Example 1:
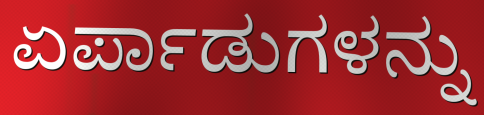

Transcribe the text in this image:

ಏರ್ಪಾಡುಗಳನ್ನು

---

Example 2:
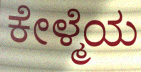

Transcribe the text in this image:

ಕೇಳ್ಮೆಯ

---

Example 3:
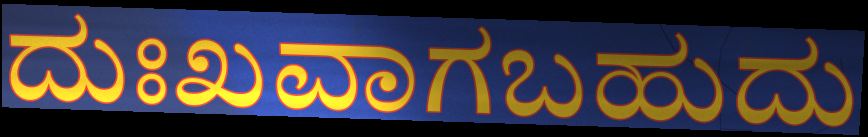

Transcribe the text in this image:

ದುಃಖವಾಗಬಹುದು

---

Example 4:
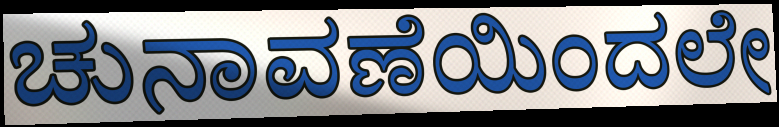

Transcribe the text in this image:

ಚುನಾವಣೆಯಿಂದಲೇ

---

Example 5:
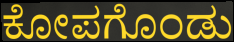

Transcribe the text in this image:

ಕೋಪಗೊಂಡು